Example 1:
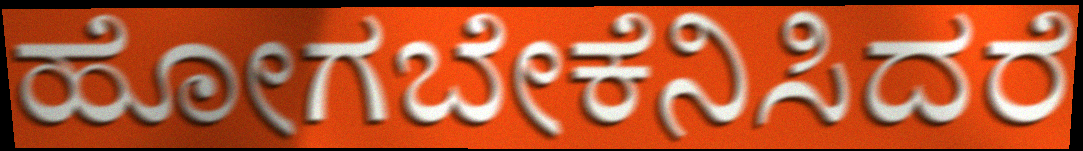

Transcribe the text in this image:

ಹೋಗಬೇಕೆನಿಸಿದರೆ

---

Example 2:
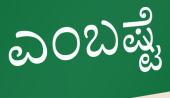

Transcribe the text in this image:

ಎಂಬಷ್ಟೆ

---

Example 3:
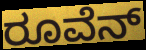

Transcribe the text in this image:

ರೂವೆನ್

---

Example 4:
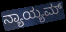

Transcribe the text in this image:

ನ್ಯಾಯ್ಯಮ್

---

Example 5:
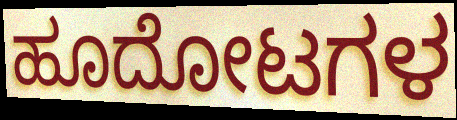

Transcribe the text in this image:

ಹೂದೋಟಗಳ